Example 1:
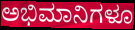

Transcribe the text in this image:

ಅಭಿಮಾನಿಗಳೂ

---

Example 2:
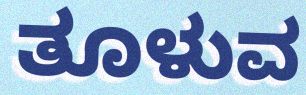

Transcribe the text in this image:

ತೂಳುವ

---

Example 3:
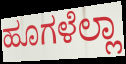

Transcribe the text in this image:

ಹೂಗಳೆಲ್ಲಾ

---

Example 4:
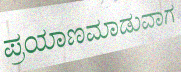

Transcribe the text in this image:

ಪ್ರಯಾಣಮಾಡುವಾಗ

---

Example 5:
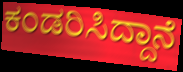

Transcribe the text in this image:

ಕಂಡರಿಸಿದ್ದಾನೆ